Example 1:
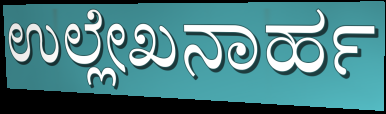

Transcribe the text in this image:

ಉಲ್ಲೇಖನಾರ್ಹ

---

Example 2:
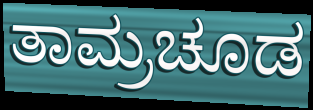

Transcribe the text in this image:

ತಾಮ್ರಚೂಡ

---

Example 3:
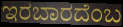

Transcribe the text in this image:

ಇರಬಾರದೆಂಬ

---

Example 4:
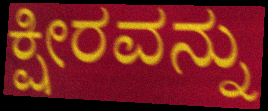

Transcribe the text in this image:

ಕ್ಷೀರವನ್ನು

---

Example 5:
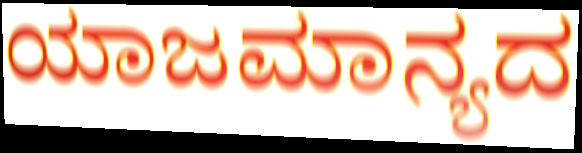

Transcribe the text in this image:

ಯಾಜಮಾನ್ಯದ